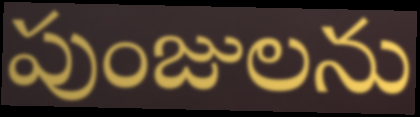
పుంజులను